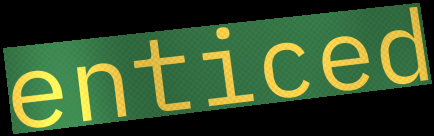
enticed